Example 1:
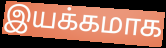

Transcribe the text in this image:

இயக்கமாக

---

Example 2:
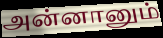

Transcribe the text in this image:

அன்னானும்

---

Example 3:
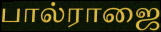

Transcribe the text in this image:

பால்ராஜை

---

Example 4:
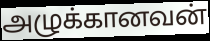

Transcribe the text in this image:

அழுக்கானவன்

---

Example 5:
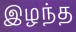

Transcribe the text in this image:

இழந்த